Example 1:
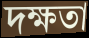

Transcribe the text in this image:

দক্ষতা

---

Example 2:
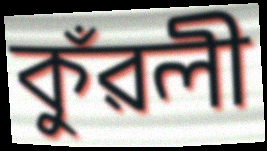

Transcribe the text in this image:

কুঁৱলী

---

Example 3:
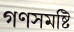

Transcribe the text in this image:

গণসমষ্টি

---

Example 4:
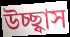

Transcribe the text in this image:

উচ্ছ্বাস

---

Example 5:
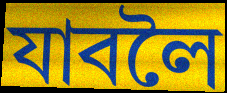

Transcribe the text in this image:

যাবলৈ